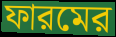
ফারমের